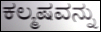
ಕಲ್ಮಷವನ್ನು